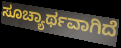
ಸೂಚ್ಯಾರ್ಥವಾಗಿದೆ